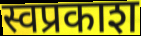
स्वप्रकाश